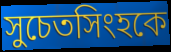
সুচেতসিংহকে